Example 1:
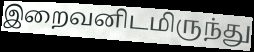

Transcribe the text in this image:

இறைவனிடமிருந்து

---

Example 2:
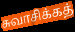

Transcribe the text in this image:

சுவாசிக்கத்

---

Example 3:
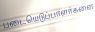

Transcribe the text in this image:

படையெடுப்பாளர்களை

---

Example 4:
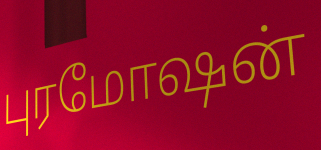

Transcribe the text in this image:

புரமோஷன்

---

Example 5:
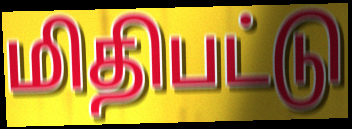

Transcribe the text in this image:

மிதிபட்டு